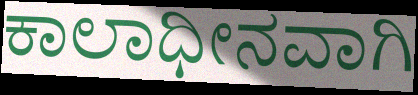
ಕಾಲಾಧೀನವಾಗಿ